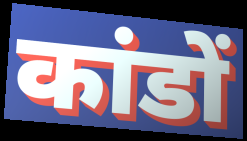
कांडों